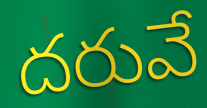
దరువే